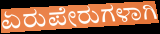
ಏರುಪೇರುಗಳಾಗಿ